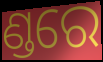
ଣ୍ଡରେ